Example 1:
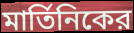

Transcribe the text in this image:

মার্তিনিকের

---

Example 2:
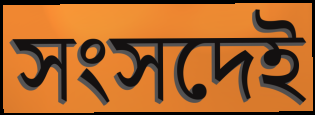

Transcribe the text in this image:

সংসদেই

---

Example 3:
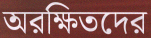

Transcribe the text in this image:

অরক্ষিতদের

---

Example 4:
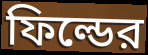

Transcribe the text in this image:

ফিল্ডের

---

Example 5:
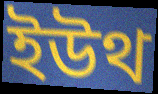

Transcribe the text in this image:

ইউথ